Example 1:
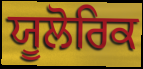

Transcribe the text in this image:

ਯੂਲੋਰਿਕ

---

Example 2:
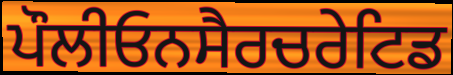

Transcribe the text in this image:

ਪੌਲੀਓਨਸੈਰਚਰੇਟਿਡ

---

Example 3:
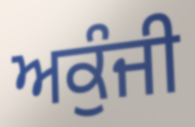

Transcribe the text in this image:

ਅਕੁੰਜੀ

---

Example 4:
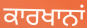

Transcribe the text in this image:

ਕਾਰਖਾਨਾਂ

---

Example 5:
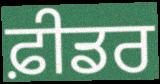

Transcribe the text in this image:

ਫ਼ੀਡਰ